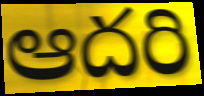
ఆదరి